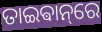
ତାଇଵାନ୍‌ରେ